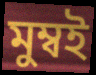
মুম্বই